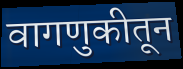
वागणुकीतून